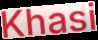
Khasi